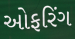
ઓફરિંગ